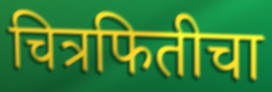
चित्रफितीचा